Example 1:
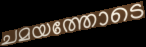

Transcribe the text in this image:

ചമയത്തോടെ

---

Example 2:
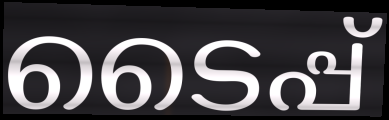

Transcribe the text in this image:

ടൈപ്പ്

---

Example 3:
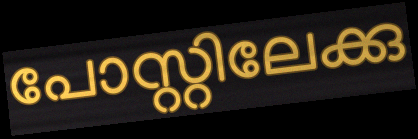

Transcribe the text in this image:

പോസ്റ്റിലേക്കു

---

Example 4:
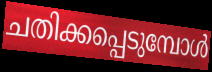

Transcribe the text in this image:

ചതിക്കപ്പെടുമ്പോൾ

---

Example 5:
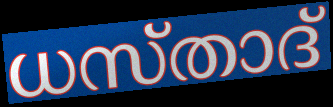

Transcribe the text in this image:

ധസ്താദ്